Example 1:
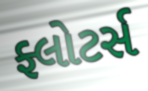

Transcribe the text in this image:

ફ્લોટર્સ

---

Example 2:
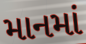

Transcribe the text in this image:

માનમાં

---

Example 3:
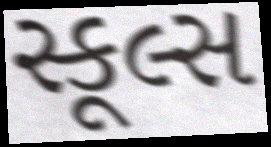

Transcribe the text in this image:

સ્કૂલ્સ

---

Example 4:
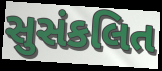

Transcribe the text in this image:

સુસંકલિત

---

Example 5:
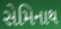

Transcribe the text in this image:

સેમિનાથ